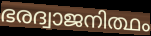
ഭരദ്വാജനിത്ഥം